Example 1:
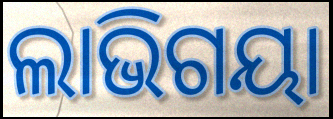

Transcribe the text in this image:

ଲାଭିଗୟା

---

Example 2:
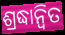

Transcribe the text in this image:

ଶ୍ରଦ୍ଧାନ୍ୱିତ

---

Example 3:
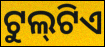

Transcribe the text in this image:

ଟୁଲ୍‍ଟିଏ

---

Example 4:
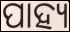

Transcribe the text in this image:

ପାହ୍ୟ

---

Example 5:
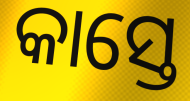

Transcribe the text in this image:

କାସ୍ତେ